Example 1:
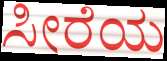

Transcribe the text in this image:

ಸೀರೆಯ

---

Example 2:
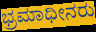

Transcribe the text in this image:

ಭ್ರಮಾಧೀನರು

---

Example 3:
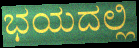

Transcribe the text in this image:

ಭಯದಲ್ಲಿ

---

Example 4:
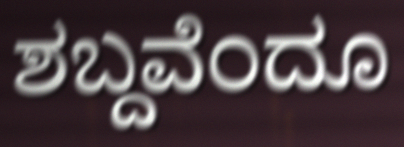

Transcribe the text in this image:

ಶಬ್ದವೆಂದೂ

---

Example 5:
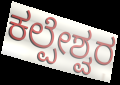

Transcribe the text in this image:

ಕಲ್ಪೇಶ್ವರ